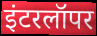
इंटरलॉपर